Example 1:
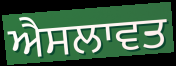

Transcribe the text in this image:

ਐਸਲਾਵਤ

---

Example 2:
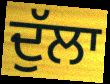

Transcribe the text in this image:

ਦੁੱਲਾ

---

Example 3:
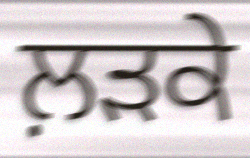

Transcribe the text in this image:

ਲ਼ਡ਼ਕੇ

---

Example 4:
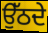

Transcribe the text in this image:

ਉੱਠਦੇ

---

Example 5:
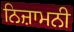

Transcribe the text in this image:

ਨਿਜ਼ਾਮਨੀ